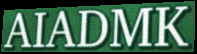
AIADMK